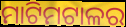
ମାଟିମଟାଳର